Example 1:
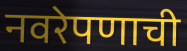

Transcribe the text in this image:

नवरेपणाची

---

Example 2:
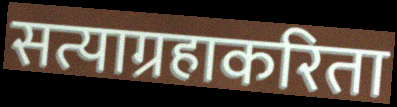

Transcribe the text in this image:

सत्याग्रहाकरिता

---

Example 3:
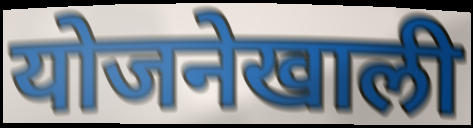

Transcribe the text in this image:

योजनेखाली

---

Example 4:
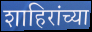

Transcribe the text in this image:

शाहिरांच्या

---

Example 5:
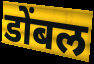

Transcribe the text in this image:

डोंबल